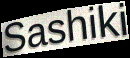
Sashiki